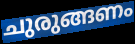
ചുരുങ്ങണം